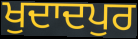
ਖੁਦਾਦਪੁਰ